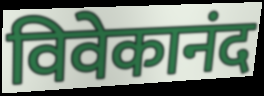
विवेकानंद